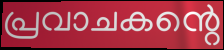
പ്രവാചകന്റെ